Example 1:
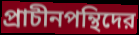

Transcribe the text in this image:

প্রাচীনপন্থিদের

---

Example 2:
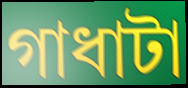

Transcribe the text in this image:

গাধাটা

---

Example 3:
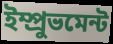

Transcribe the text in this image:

ইম্প্রুভমেন্ট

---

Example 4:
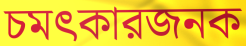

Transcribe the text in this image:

চমৎকারজনক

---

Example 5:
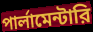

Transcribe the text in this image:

পার্লামেন্টারি